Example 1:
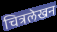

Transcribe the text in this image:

चित्रलेखन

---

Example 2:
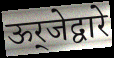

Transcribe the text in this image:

ऊर्जेद्वारे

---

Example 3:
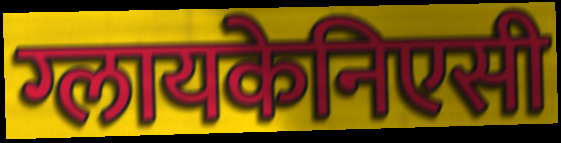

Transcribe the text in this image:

ग्लायकेनिएसी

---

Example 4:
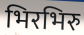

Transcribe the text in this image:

भिरभिरु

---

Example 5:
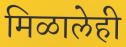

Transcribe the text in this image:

मिळालेही